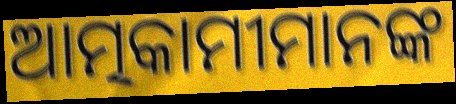
ଆତ୍ମକାମୀମାନଙ୍କ